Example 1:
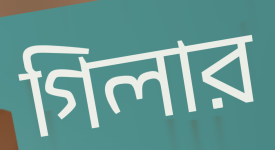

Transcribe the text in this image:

গিলার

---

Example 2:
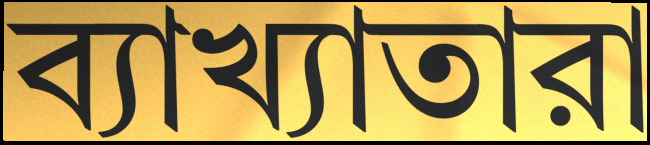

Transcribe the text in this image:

ব্যাখ্যাতারা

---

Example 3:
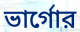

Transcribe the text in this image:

ভার্গোর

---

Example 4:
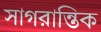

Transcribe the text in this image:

সাগরান্তিক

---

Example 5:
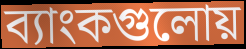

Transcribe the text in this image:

ব্যাংকগুলোয়